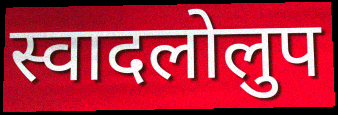
स्वादलोलुप